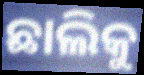
ଛାଲିକୁ